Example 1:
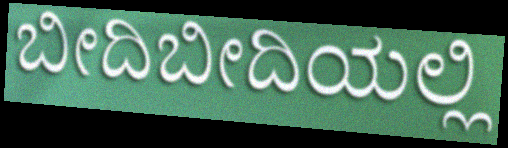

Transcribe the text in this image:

ಬೀದಿಬೀದಿಯಲ್ಲಿ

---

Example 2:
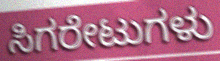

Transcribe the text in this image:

ಸಿಗರೇಟುಗಳು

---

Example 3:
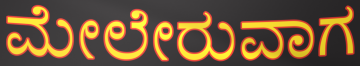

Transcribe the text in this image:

ಮೇಲೇರುವಾಗ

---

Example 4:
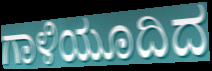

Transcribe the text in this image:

ಗಾಳಿಯೂದಿದ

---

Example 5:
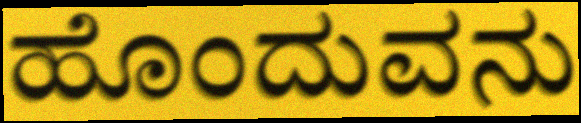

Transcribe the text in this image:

ಹೊಂದುವನು